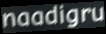
naadigru